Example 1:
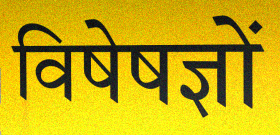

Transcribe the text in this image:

विषेषज्ञों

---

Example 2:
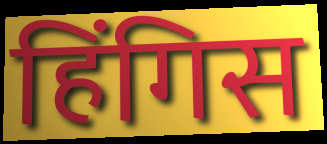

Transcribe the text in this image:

हिंगिस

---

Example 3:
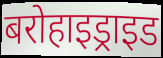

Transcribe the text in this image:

बरोहाइड्राइड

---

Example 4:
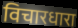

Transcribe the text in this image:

विचारधारा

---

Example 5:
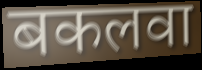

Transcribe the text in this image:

बकलवा